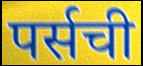
पर्सची